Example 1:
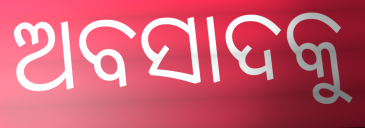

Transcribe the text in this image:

ଅବସାଦକୁ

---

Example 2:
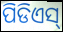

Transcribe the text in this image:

ପିଡିଏସ୍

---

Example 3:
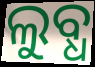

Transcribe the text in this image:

ଲୁବ୍ଧ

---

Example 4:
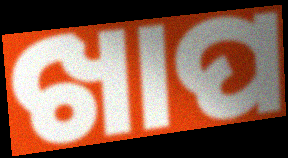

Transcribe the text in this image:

ଖାପ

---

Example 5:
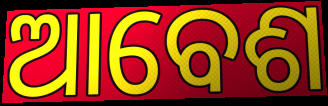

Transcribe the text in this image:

ଆବେଶ